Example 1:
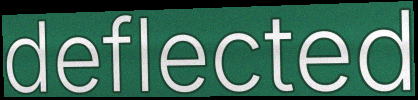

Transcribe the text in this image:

deflected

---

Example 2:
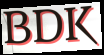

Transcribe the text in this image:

BDK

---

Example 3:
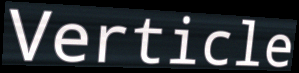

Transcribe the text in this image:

Verticle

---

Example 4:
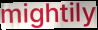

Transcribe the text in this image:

mightily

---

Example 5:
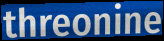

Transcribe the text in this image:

threonine